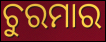
ଚୁରମାର